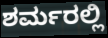
ಶರ್ಮರಲ್ಲಿ